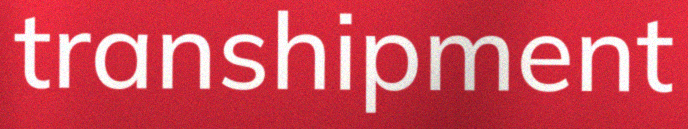
transhipment